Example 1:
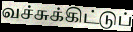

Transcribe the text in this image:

வச்சுக்கிட்டுப்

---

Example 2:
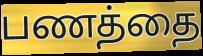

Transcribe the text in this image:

பணத்தை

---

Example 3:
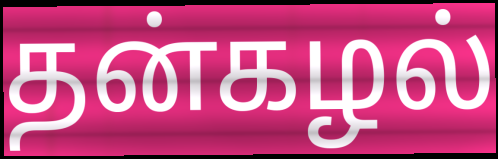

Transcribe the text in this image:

தன்கழல்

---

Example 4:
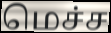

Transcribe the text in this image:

மெச்ச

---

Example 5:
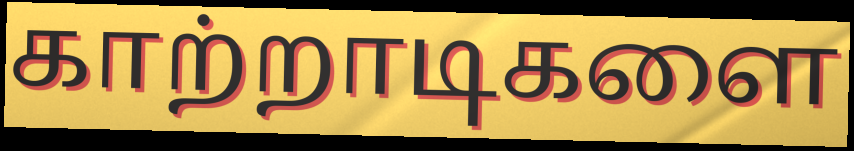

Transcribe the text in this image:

காற்றாடிகளை